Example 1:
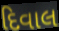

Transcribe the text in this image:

દિવાલ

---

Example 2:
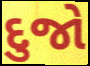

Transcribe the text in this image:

દુજો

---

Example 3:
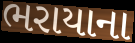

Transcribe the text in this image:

ભરાયાના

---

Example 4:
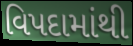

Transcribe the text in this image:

વિપદામાંથી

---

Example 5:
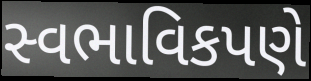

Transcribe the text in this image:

સ્વભાવિકપણે